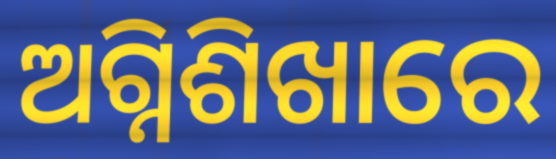
ଅଗ୍ନିଶିଖାରେ